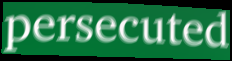
persecuted